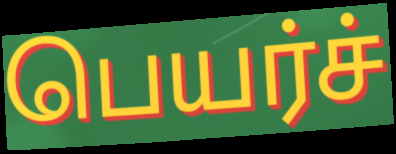
பெயர்ச்